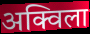
अक्विला